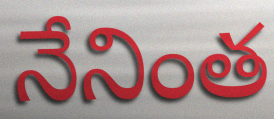
నేనింత